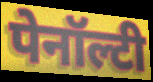
पेनॉल्टी